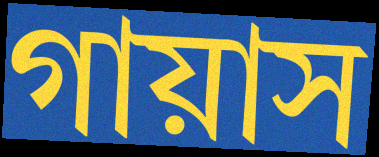
গায়াস